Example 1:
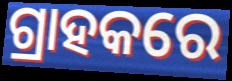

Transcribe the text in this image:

ଗ୍ରାହକରେ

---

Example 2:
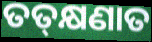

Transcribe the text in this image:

ତତ୍‍କ୍ଷଣାତ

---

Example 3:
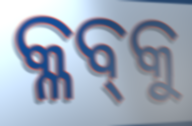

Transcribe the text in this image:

କ୍ଳବ୍‌କୁ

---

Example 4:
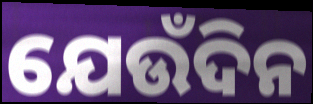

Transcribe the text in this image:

ଯେଉଁଦିନ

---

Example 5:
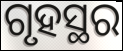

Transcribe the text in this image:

ଗୃହସ୍ଥର